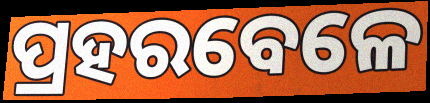
ପ୍ରହରବେଳେ